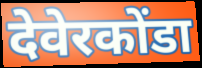
देवेरकोंडा